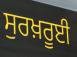
ਸੁਰਖ਼ਰੂਈ